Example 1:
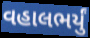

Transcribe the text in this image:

વહાલભર્યું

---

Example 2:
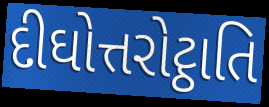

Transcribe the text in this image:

દીઘોત્તરોટ્ઠાતિ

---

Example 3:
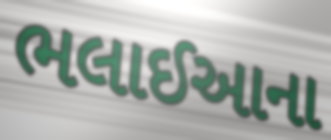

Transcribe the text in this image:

ભલાઈઆના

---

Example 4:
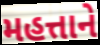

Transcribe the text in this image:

મહત્તાને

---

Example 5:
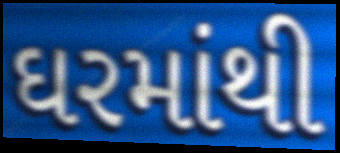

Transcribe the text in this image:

ઘરમાંથી